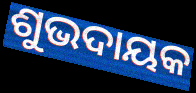
ଶୁଭଦାୟକ